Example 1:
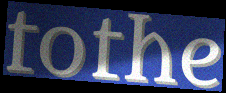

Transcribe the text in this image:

tothe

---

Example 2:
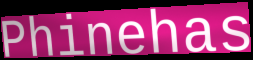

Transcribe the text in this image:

Phinehas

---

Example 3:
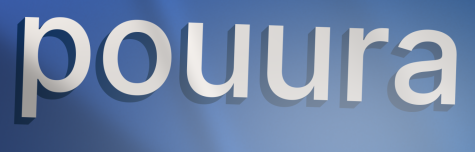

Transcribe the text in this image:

pouura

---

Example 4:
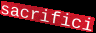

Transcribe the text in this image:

sacrifici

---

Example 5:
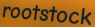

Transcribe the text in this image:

rootstock